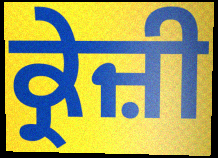
ਕ੍ਰੇਜ਼ੀ